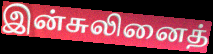
இன்சுலினைத்